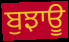
ਬੁਝਾਊ